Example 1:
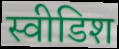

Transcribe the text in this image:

स्वीडिश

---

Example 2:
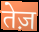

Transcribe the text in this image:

तेज़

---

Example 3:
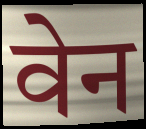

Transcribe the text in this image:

वेन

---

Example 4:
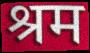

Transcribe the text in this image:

श्रम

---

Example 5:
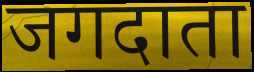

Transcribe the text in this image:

जगदाता